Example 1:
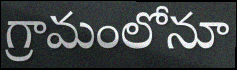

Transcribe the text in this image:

గ్రామంలోనూ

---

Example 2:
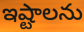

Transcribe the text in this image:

ఇష్టాలను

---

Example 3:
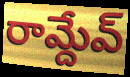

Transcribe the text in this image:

రామ్దేవ్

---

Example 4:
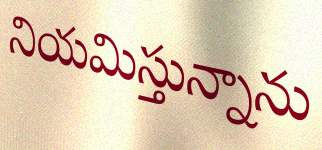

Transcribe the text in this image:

నియమిస్తున్నాను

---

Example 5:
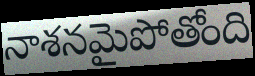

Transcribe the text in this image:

నాశనమైపోతోంది